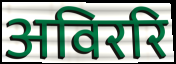
अविररि